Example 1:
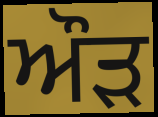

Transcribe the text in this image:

ਔਡ਼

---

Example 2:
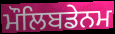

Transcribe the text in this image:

ਮੌਲਿਬਡੇਨਮ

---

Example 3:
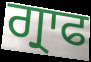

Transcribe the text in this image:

ਗ੍ਰਾਫ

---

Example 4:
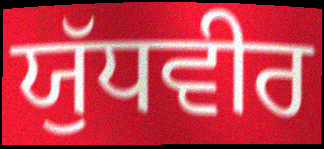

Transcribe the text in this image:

ਯੁੱਧਵੀਰ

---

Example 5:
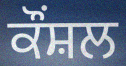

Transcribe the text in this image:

ਕੌਂਸ਼ਲ